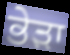
ਭੇੜਾ